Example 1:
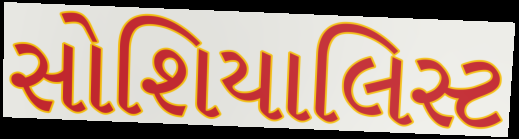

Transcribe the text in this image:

સોશિયાલિસ્ટ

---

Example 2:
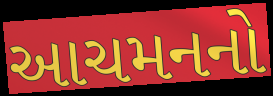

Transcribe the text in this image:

આચમનનો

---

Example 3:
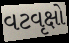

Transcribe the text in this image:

વટવૃક્ષો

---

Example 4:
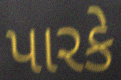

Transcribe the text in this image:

પારકે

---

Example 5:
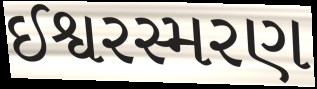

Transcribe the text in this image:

ઈશ્વરસ્મરણ